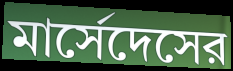
মার্সেদেসের